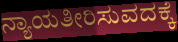
ನ್ಯಾಯತೀರಿಸುವದಕ್ಕೆ